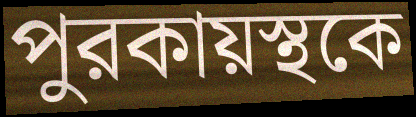
পুরকায়স্থকে